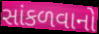
સાંકળવાનો